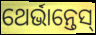
ଥେର୍ଭାନ୍ତେସ୍